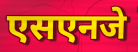
एसएनजे